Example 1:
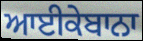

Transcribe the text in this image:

ਆਈਕੇਬਾਨਾ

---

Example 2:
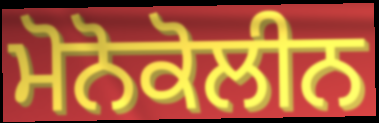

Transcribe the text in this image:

ਮੋਨੋਕੋਲੀਨ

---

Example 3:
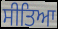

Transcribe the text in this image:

ਸੀਤਿਆ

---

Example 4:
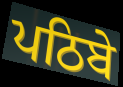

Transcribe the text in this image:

ਪਠਿਬੇ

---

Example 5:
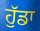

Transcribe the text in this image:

ਹੁੱਡਾ